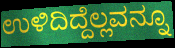
ಉಳಿದಿದ್ದೆಲ್ಲವನ್ನೂ